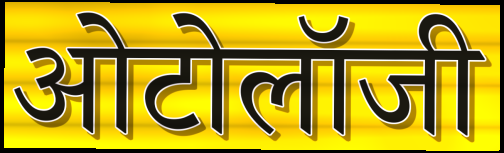
ओटोलॉजी